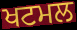
ਖਟਮਲ